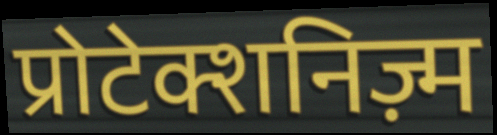
प्रोटेक्शनिज़्म